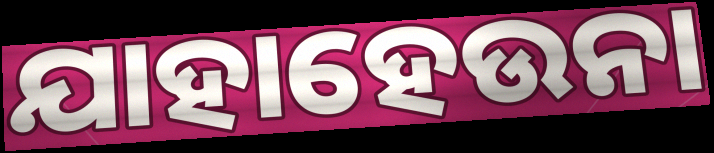
ଯାହାହେଉନା